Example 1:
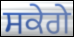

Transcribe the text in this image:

ਸਕੇਗੇ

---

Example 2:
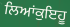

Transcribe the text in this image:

ਲਿਆਂਕੁਇਹੂ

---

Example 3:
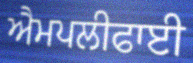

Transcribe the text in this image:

ਐਮਪਲੀਫਾਈ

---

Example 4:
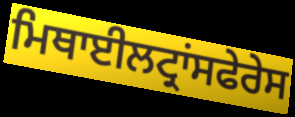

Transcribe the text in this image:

ਮਿਥਾਈਲਟ੍ਰਾਂਸਫੇਰੇਸ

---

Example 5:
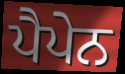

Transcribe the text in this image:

ਪੈਪੇਨ